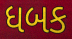
ધબક